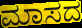
ಮಾಸದ